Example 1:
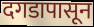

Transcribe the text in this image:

दगडापासून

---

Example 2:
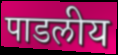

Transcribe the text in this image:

पाडलीय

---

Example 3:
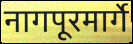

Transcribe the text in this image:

नागपूरमार्गे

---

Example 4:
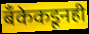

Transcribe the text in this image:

बँकेकडूनही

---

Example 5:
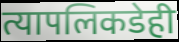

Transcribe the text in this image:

त्यापलिकडेही